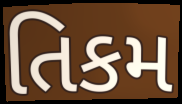
તિકમ